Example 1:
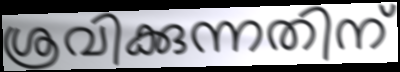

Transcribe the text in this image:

ശ്രവിക്കുന്നതിന്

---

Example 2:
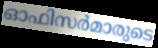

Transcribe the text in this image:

ഓഫിസർമാരുടെ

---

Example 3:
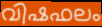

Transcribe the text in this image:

വിഷഫലം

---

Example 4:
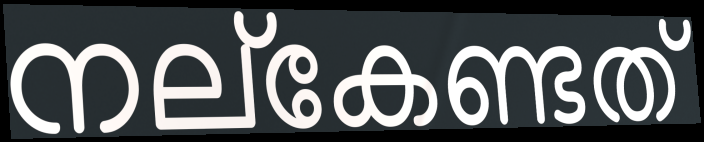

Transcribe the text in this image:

നല്കേണ്ടത്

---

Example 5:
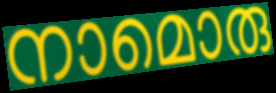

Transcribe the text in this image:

നാമൊരു